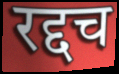
रद्दच